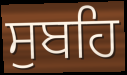
ਸੁਬਹਿ